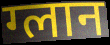
ग्लान